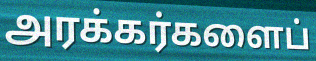
அரக்கர்களைப்